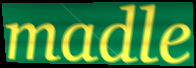
madle